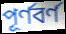
পূর্ণবর্ণ